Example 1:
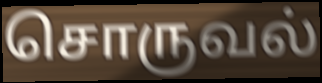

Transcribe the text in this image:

சொருவல்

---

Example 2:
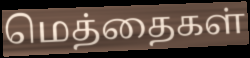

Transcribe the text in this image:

மெத்தைகள்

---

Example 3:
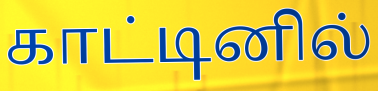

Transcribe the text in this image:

காட்டினில்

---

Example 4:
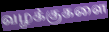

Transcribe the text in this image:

வழக்குகளை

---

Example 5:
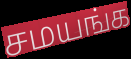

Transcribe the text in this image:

சமயங்க